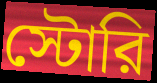
স্টোরি